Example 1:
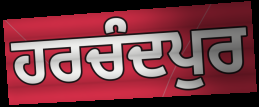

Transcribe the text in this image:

ਹਰਚੰਦਪੁਰ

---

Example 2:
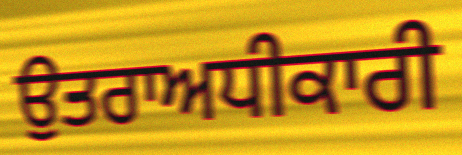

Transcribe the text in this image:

ਉਤਰਾਅਧੀਕਾਰੀ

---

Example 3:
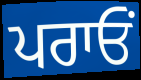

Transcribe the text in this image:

ਪਰਾਓਂ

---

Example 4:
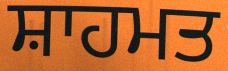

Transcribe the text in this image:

ਸ਼ਾਹਮਤ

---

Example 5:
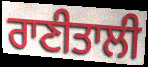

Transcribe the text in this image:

ਰਾਣੀਤਾਲੀ